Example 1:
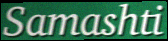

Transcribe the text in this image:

Samashti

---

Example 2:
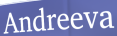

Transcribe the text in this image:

Andreeva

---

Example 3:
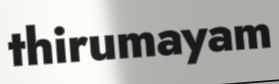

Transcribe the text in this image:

thirumayam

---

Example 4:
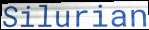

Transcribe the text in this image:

Silurian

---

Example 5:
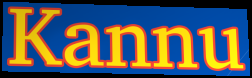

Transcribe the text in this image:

Kannu